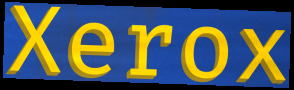
Xerox